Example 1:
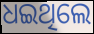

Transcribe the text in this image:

ଧଇଥିଲେ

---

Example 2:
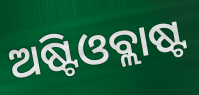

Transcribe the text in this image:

ଅଷ୍ଟିଓବ୍ଲାଷ୍ଟ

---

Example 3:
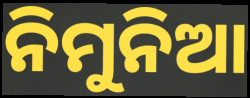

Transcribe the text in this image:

ନିମୁନିଆ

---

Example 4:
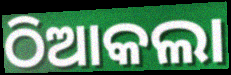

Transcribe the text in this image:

ଠିଆକଲା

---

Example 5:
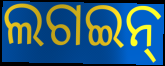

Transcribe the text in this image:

ଲଗଇନ୍